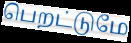
பெறட்டுமே